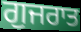
ਗੁਜਰਾਤ